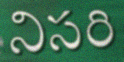
నిసరి